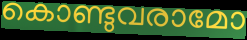
കൊണ്ടുവരാമോ